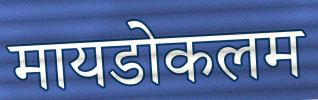
मायडोकलम